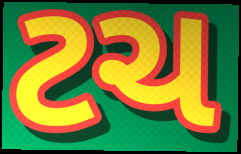
ટચ